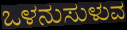
ಒಳನುಸುಳುವ